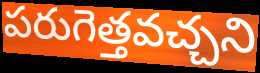
పరుగెత్తవచ్చని